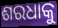
ଶରଧାକୁ